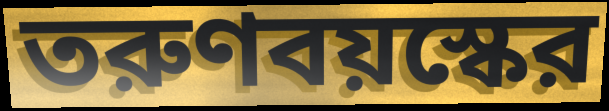
তরুণবয়স্কের